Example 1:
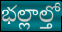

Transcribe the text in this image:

భల్లాల్తో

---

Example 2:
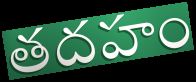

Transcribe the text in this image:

తదహం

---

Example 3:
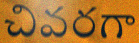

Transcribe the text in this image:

చివరగా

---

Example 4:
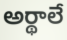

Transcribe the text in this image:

అర్థాలే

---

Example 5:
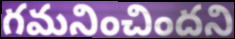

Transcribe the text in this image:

గమనించిందని